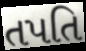
તપતિ